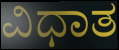
ವಿಧಾತ